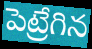
పెట్రేగిన